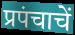
प्रपंचाचें